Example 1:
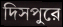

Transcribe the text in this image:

দিসপুরে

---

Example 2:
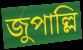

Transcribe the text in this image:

জুপাল্লি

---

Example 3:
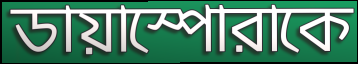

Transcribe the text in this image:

ডায়াস্পোরাকে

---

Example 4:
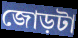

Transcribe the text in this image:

জোড়টা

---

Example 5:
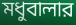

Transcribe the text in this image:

মধুবালার